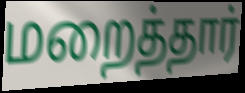
மறைத்தார்